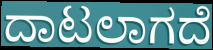
ದಾಟಲಾಗದೆ